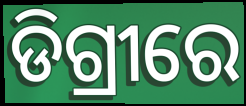
ଡିଗ୍ରୀରେ